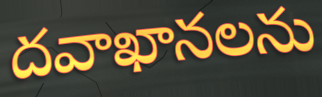
దవాఖానలను